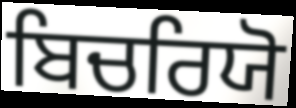
ਬਿਚਰਿਯੋ